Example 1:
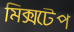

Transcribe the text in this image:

মিক্সটেপ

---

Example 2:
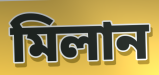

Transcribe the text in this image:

মিলান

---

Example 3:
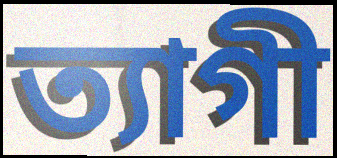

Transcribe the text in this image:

ত্যাগী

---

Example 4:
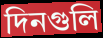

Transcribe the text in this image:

দিনগুলি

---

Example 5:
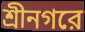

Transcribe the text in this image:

শ্রীনগরে